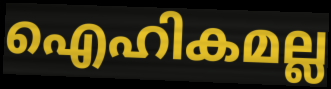
ഐഹികമല്ല